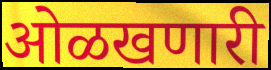
ओळखणारी